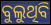
ବୁଲୁଥିବି